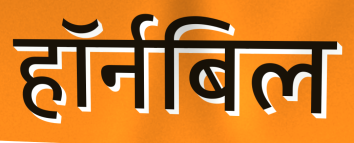
हॉर्नबिल